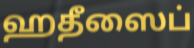
ஹதீஸைப்